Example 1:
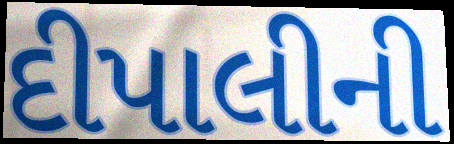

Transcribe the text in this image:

દીપાલીની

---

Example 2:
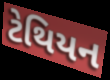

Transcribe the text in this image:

ટેથિયન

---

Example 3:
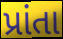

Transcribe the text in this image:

પ્રાંતા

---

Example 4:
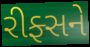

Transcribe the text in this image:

રીફ્સને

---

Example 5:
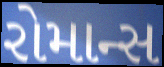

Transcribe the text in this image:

રોમાન્સ